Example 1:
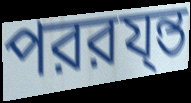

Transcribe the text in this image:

পররয্ন্ত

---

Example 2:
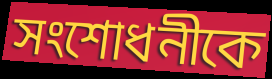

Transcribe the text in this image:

সংশোধনীকে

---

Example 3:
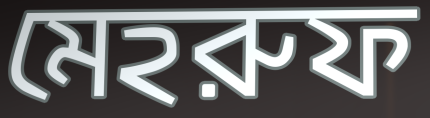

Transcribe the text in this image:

মেহরুফ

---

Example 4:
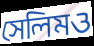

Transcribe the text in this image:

সেলিমও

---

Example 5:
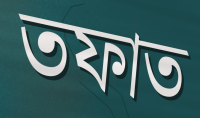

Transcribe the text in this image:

তফাত